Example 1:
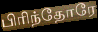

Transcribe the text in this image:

பிரிந்தோரே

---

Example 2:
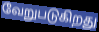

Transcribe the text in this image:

வேறுபடுகிறது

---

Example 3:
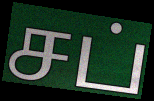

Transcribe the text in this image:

சப்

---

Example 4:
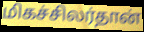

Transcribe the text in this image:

மிகச்சிலர்தான்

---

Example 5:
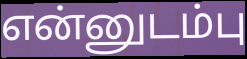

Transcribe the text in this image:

என்னுடம்பு